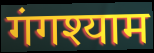
गंगश्याम